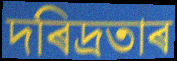
দৰিদ্ৰতাৰ